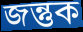
জন্তুক